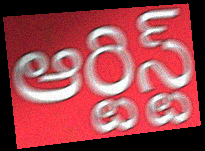
ఆర్టిస్ట్